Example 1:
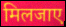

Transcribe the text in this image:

मिलजाए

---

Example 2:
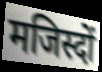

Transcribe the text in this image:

मजिस्दों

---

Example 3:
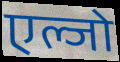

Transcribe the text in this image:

एल्जो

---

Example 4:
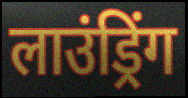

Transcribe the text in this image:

लाउंड्रिंग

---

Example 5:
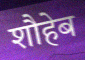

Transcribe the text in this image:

शौहेब